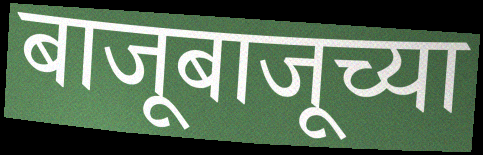
बाजूबाजूच्या